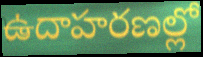
ఉదాహరణల్లో